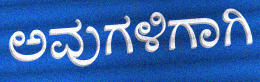
ಅವುಗಳಿಗಾಗಿ